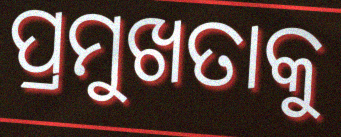
ପ୍ରମୁଖତାକୁ